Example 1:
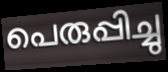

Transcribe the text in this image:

പെരുപ്പിച്ചു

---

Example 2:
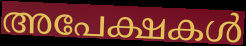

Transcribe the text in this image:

അപേക്ഷകൾ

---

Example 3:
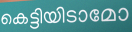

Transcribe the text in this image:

കെട്ടിയിടാമോ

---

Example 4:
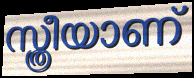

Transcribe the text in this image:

സ്ത്രീയാണ്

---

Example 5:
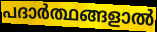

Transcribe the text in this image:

പദാർത്ഥങ്ങളാൽ